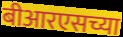
बीआरएसच्या